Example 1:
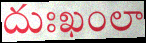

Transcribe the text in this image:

దుఃఖంలా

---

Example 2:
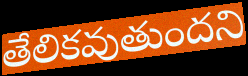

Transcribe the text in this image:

తేలికవుతుందని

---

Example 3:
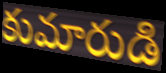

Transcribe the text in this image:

కుమారుడి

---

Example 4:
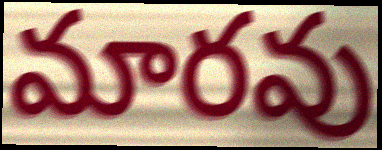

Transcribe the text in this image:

మారవు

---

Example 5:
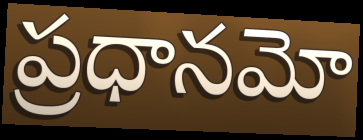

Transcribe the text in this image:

ప్రధానమో